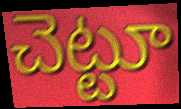
చెట్టూ